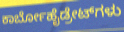
ಕಾರ್ಬೋಹೈಡ್ರೇಟ್‌ಗಳು